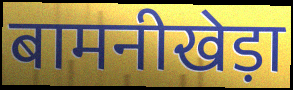
बामनीखेड़ा